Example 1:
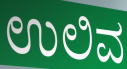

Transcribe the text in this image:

ಉಲಿವ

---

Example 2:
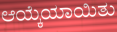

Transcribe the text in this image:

ಆಯ್ಕೆಯಾಯಿತು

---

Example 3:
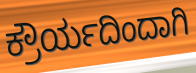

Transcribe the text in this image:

ಕ್ರೌರ್ಯದಿಂದಾಗಿ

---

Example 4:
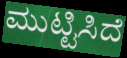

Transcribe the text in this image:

ಮುಟ್ಟಿಸಿದೆ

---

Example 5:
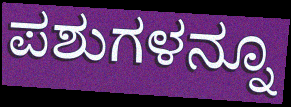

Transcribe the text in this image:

ಪಶುಗಳನ್ನೂ